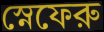
স্নেফেরু